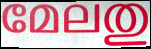
മേലതു